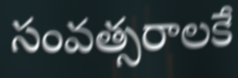
సంవత్సరాలకే